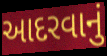
આદરવાનું